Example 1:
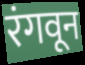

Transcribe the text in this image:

रंगवून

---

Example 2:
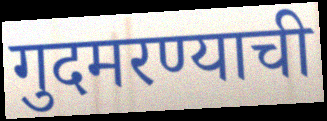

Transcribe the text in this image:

गुदमरण्याची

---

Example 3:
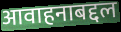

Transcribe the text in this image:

आवाहनाबद्दल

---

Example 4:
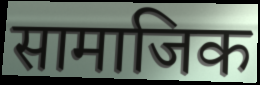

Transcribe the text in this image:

सामाजिक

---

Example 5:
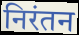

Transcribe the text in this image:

निरंतन